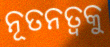
ନୂତନତ୍ବକୁ